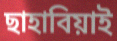
ছাহাবিয়াই